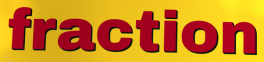
fraction